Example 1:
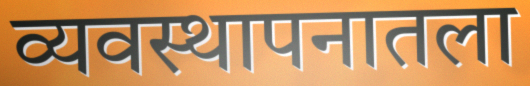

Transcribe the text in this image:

व्यवस्थापनातला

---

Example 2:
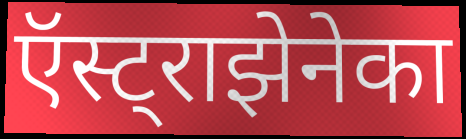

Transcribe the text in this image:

ऍस्ट्राझेनेका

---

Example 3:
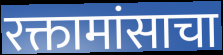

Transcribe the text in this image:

रक्तामांसाचा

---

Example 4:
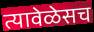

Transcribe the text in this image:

त्यावेळेसच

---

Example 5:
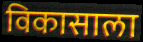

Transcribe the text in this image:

विकासाला